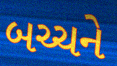
બચ્ચને